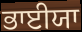
ਭਾਈਯਾ